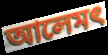
আলেমৎ